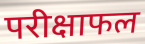
परीक्षाफल